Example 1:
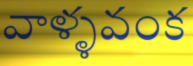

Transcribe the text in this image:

వాళ్ళవంక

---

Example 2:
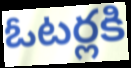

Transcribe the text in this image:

ఓటర్లకి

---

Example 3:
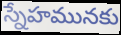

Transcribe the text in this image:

స్నేహమునకు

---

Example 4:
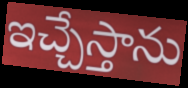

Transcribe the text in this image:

ఇచ్చేస్తాను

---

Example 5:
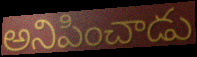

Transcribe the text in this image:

అనిపించాడు